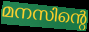
മനസിന്റെ